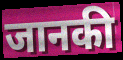
जानकी